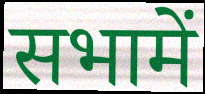
सभामें